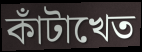
কাঁটাখেত